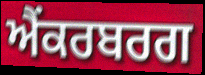
ਐਂਕਰਬਰਗ